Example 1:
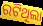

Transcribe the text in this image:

ରଟିଥିଲା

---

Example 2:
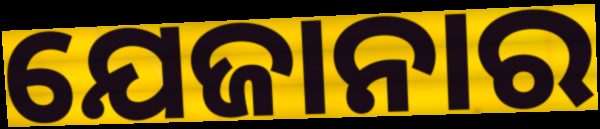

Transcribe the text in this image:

ଯେଜାନାର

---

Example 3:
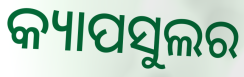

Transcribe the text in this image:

କ୍ୟାପସୁଲର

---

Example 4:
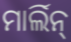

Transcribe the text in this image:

ମାର୍ଲିନ୍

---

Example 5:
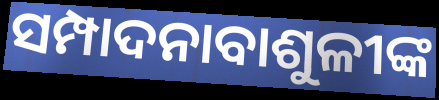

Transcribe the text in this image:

ସମ୍ପାଦନାବାଶୁଳୀଙ୍କ